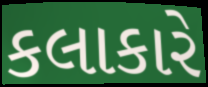
કલાકારે